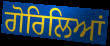
ਗੋਰਿਲਿਆਂ